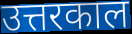
उत्तरकाल